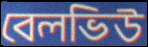
বেলভিউ